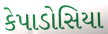
કેપાડોસિયા